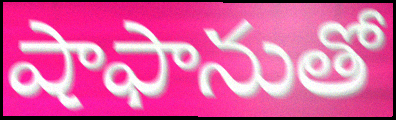
షాఫానుతో